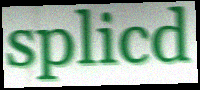
splicd